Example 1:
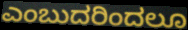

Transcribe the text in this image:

ಎಂಬುದರಿಂದಲೂ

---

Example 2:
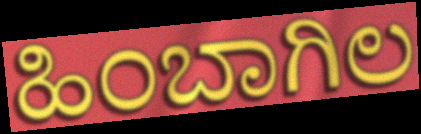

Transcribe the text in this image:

ಹಿಂಬಾಗಿಲ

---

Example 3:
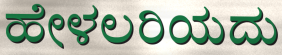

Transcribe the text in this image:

ಹೇಳಲರಿಯದು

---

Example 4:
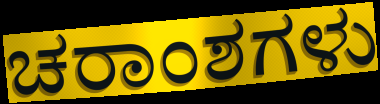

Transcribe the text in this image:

ಚರಾಂಶಗಳು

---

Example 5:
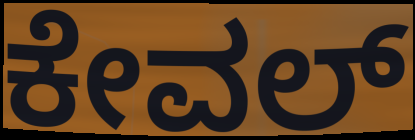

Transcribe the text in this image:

ಕೇವಲ್